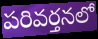
పరివర్తనలో